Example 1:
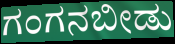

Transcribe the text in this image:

ಗಂಗನಬೀಡು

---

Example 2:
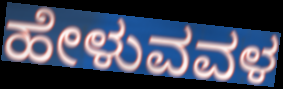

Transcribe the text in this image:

ಹೇಳುವವಳ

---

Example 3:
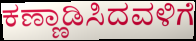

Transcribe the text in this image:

ಕಣ್ಣಾಡಿಸಿದವಳಿಗೆ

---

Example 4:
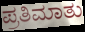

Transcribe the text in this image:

ಪ್ರತಿಮಾತು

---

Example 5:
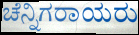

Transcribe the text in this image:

ಚೆನ್ನಿಗರಾಯರು